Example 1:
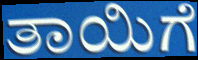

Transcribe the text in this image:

ತಾಯಿಗೆ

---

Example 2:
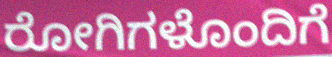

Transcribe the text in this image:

ರೋಗಿಗಳೊಂದಿಗೆ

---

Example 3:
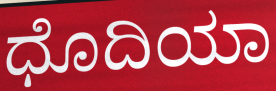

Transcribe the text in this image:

ಧೊದಿಯಾ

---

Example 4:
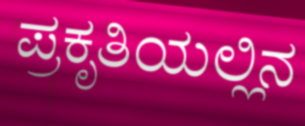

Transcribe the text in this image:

ಪ್ರಕೃತಿಯಲ್ಲಿನ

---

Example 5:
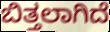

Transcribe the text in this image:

ಬಿತ್ತಲಾಗಿದೆ